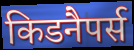
किडनैपर्स